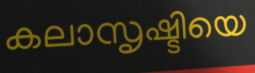
കലാസൃഷ്ടിയെ